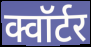
क्वॉर्टर